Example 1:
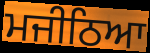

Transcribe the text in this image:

ਮਜੀਠਿਆ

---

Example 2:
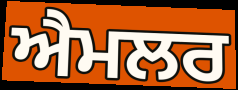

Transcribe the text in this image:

ਐਮਲਰ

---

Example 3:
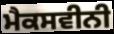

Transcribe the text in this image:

ਮੈਕਸਵੀਨੀ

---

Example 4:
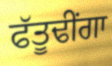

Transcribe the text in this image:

ਫੱਤੂਢੀਂਗਾ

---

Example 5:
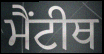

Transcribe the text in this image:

ਮੈਂਟੀਥ